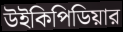
উইকিপিডিয়ার